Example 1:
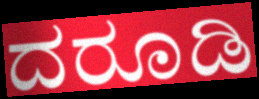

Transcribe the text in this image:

ದರೂಡಿ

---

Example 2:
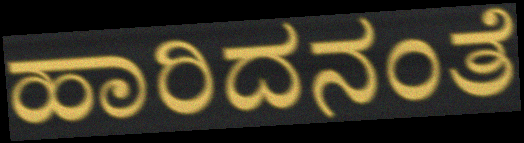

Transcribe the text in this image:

ಹಾರಿದನಂತೆ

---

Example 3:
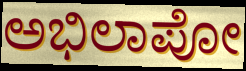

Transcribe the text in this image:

ಅಭಿಲಾಪೋ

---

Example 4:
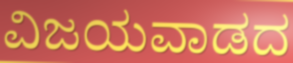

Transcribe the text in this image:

ವಿಜಯವಾಡದ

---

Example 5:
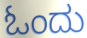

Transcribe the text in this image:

ಓಂದು